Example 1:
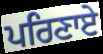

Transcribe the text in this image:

ਪਰਿਣਾਏ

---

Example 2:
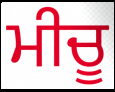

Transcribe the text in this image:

ਮੀਚੂ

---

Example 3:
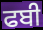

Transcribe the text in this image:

ਫਬੀ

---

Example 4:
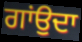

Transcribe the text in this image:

ਗਾਂਉਦਾ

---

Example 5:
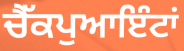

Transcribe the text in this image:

ਚੈੱਕਪੁਆਇੰਟਾਂ